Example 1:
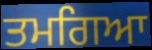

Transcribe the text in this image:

ਤਮਗਿਆ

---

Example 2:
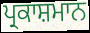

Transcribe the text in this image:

ਪ੍ਰਕਾਸ਼ਮਾਨ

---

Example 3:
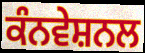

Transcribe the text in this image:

ਕੰਨਵੇਸ਼ਨਲ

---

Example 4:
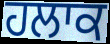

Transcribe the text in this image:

ਹਲਾਕ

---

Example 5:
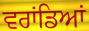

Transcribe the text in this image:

ਵਰਾਂਡਿਆਂ